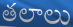
తలాలు